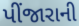
પીંજારાની